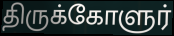
திருக்கோளுர்